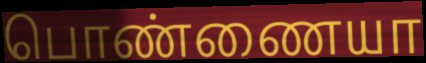
பொண்ணையா